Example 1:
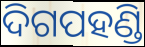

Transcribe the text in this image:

ଦିଗପହଣ୍ଡି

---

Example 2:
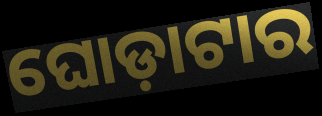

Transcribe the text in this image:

ଘୋଡ଼ାଟାର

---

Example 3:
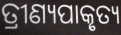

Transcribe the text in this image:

ତ୍ରୀଣ୍ୟପାକୃତ୍ୟ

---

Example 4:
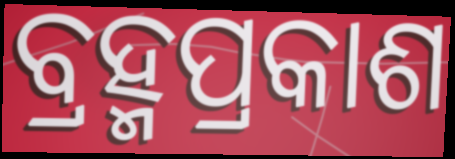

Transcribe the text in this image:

ବ୍ରହ୍ମପ୍ରକାଶ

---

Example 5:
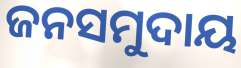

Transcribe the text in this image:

ଜନସମୁଦାୟ